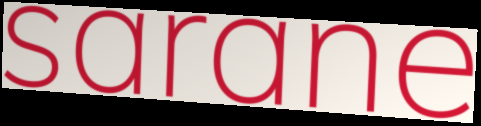
sarane